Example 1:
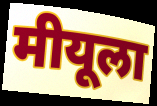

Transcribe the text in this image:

मीयूला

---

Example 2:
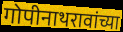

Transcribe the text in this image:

गोपीनाथरावांच्या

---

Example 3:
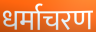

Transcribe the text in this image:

धर्माचरण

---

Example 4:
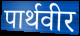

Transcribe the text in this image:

पार्थवीर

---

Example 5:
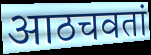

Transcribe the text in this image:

आठचवतां